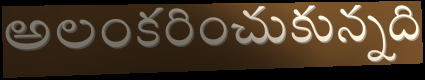
అలంకరించుకున్నది